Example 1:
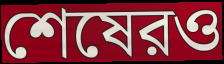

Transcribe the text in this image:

শেষেরও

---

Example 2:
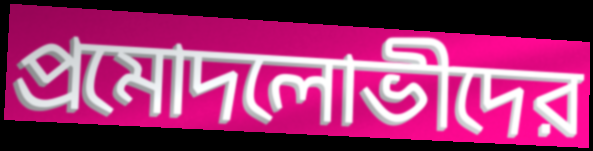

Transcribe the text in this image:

প্রমোদলোভীদের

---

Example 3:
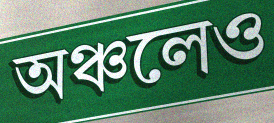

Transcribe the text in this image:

অঞ্চলেও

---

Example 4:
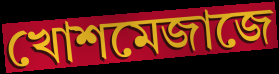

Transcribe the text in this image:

খোশমেজাজে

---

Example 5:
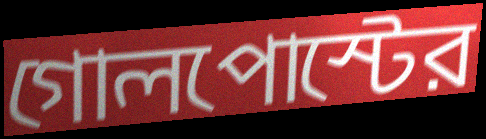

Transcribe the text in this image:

গোলপোস্টের